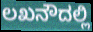
ಲಖನೌದಲ್ಲಿ